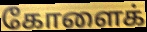
கோளைக்